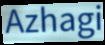
Azhagi